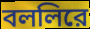
বললিরে